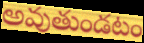
అవుతుండటం